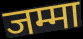
जम्मा